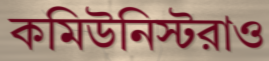
কমিউনিস্টরাও